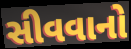
સીવવાનો